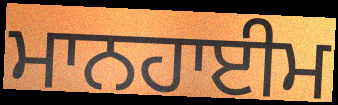
ਮਾਨਹਾਈਮ